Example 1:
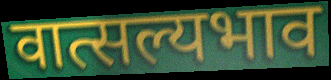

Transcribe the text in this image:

वात्सल्यभाव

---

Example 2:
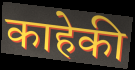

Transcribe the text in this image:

काहेकी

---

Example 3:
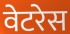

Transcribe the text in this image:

वेटरेस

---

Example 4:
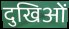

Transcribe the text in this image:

दुखिओं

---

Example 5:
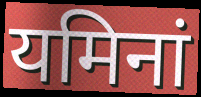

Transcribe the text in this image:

यमिनां